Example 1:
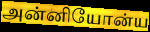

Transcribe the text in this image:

அன்னியோன்ய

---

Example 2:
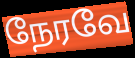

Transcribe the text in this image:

நேரவே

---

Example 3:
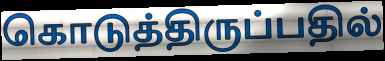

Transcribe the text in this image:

கொடுத்திருப்பதில்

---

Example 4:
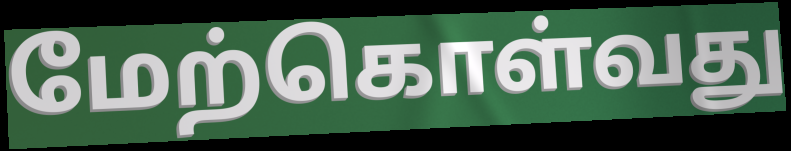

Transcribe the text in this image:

மேற்கொள்வது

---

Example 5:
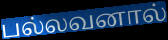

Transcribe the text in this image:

பல்லவனால்